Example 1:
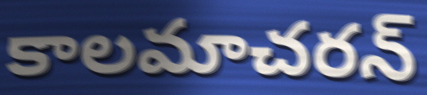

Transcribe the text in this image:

కాలమాచరన్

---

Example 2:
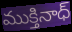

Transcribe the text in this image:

ముక్తినాధ్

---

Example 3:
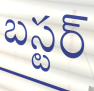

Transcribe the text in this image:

బస్టర్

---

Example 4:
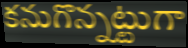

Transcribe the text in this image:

కనుగొన్నట్టుగా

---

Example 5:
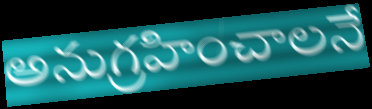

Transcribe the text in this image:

అనుగ్రహించాలనే